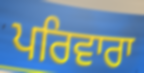
ਪਰਿਵਾਰਾ